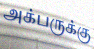
அக்பருக்கு